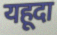
यहूदा